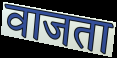
वाजता